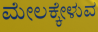
ಮೇಲಕ್ಕೇಳುವ